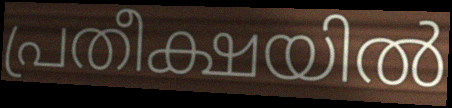
പ്രതീക്ഷയിൽ